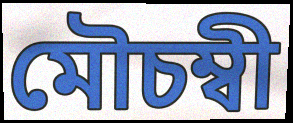
মৌচম্বী